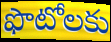
ఫొటోలకు